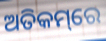
ଅତିକମ୍‌ରେ